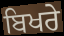
ਬਿਖਰੇ